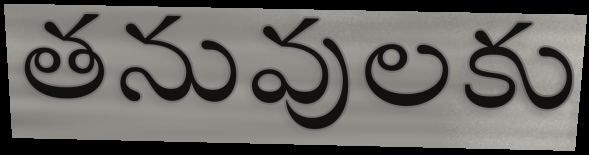
తనువులకు